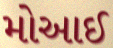
મોઆઈ